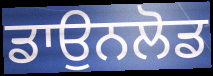
ਡਾਉਨਲੋਡ